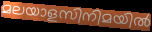
മലയാളസിനിമയിൽ